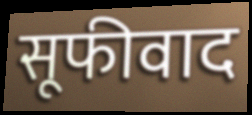
सूफीवाद